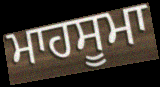
ਮਾਹਸੂਮਾ